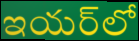
ఇయర్‌లో